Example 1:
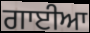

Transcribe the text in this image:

ਗਾਈਆ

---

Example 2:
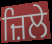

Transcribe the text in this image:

ਜ਼ਿਲੇ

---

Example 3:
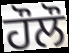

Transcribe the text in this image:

ਹੌਲੌ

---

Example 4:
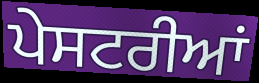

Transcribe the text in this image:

ਪੇਸਟਰੀਆਂ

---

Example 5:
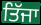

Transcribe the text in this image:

ਤਿੱਜਾ